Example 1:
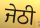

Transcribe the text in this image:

ਜੇਠੀ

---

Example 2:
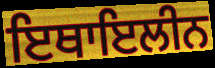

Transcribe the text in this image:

ਇਥਾਇਲੀਨ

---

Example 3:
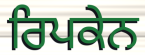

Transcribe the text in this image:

ਰਿਪਕੇਨ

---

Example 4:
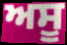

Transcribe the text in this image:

ਅਸੂ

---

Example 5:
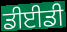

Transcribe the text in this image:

ਡੀਈਡੀ